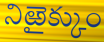
నిఱైక్కుం